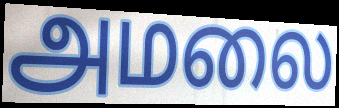
அமலை